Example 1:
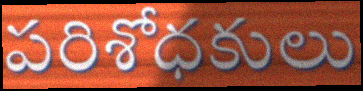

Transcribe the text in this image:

పరిశోధకులు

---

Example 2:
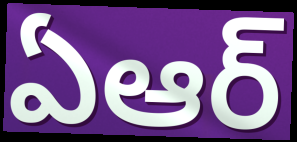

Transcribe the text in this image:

ఏఆర్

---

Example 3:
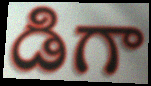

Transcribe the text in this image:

డిగా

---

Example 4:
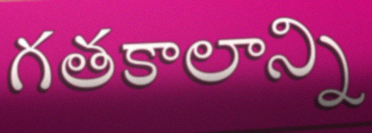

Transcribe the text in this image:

గతకాలాన్ని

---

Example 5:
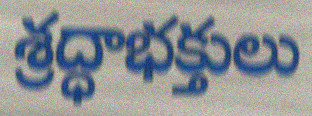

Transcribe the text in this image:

శ్రద్ధాభక్తులు